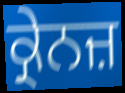
ਕ੍ਰੇਨਜ਼